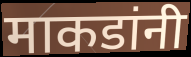
माकडांनी